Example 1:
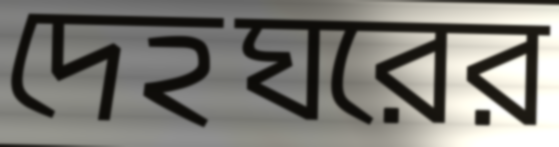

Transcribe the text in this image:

দেহঘরের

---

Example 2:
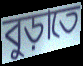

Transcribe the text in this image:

বুড়াতে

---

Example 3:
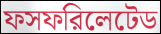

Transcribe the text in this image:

ফসফরিলেটেড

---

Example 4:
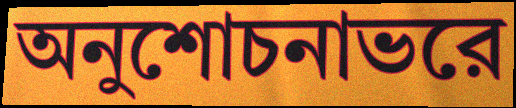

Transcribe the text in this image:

অনুশোচনাভরে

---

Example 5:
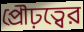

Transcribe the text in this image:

প্রৌঢ়ত্বের